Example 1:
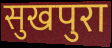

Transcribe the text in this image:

सुखपुरा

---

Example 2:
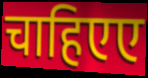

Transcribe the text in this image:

चाहिएए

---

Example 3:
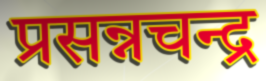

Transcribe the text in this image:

प्रसन्नचन्द्र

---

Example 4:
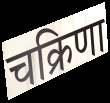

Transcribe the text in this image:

चक्रिणा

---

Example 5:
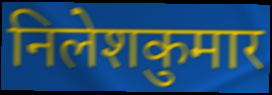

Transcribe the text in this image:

निलेशकुमार